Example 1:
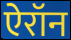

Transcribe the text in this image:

ऐरॉन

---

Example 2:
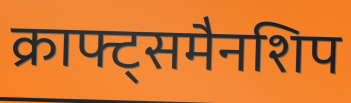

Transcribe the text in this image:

क्राफ्ट्समैनशिप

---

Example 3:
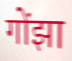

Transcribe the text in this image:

गोंझा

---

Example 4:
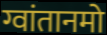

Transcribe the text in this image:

ग्वांतानमो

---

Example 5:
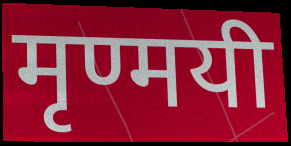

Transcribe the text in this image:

मृण्मयी